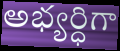
అభ్యర్ధిగా